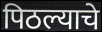
पिठल्याचे